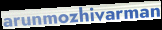
arunmozhivarman